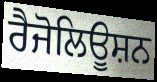
ਰੈਜੋਲਿਊਸ਼ਨ